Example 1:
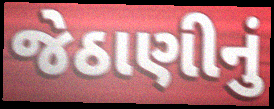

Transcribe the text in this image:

જેઠાણીનું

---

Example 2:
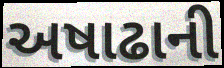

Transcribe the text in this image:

અષાઢાની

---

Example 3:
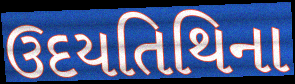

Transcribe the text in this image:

ઉદયતિથિના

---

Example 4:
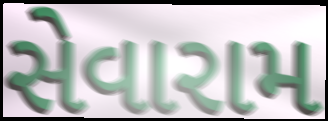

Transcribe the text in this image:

સેવારામ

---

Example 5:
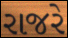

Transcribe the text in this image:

રાજરે